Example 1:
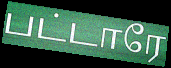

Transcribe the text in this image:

பட்டாரே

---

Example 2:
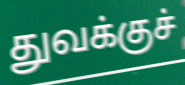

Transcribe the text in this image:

துவக்குச்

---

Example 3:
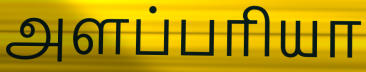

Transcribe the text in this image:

அளப்பரியா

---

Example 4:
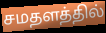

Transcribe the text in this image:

சமதளத்தில்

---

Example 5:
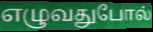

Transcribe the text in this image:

எழுவதுபோல்